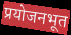
प्रयोजनभूत